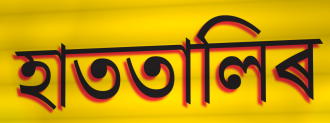
হাততালিৰ